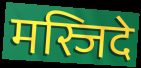
मस्जिदे